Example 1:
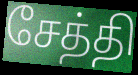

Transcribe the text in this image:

சேத்தி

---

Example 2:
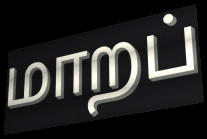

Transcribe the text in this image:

மாறப்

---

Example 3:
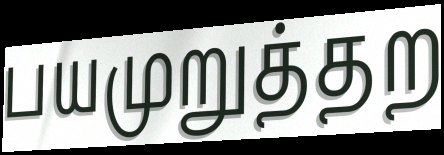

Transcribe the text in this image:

பயமுறுத்தற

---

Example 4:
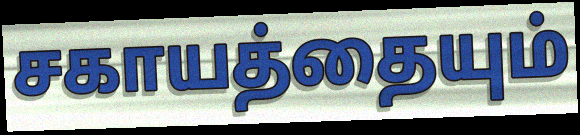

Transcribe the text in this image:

சகாயத்தையும்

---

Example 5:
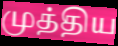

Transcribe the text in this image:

முத்திய